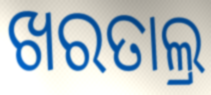
ଖରତାଲ୍ର